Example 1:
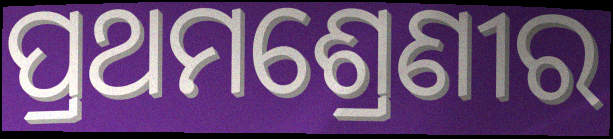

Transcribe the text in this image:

ପ୍ରଥମଶ୍ରେଣୀର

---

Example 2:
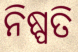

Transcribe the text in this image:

ନିଷ୍ପତି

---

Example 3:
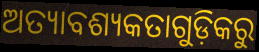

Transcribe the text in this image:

ଅତ୍ୟାବଶ୍ୟକତାଗୁଡ଼ିକରୁ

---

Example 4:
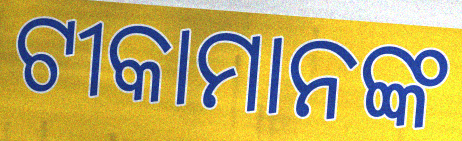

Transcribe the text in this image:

ଟୀକାମାନଙ୍କ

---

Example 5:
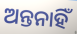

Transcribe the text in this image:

ଅନ୍ତନାହିଁ